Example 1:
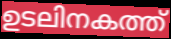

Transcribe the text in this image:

ഉടലിനകത്ത്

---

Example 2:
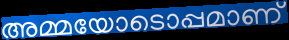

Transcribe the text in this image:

അമ്മയോടൊപ്പമാണ്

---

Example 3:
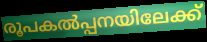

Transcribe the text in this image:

രൂപകൽപ്പനയിലേക്ക്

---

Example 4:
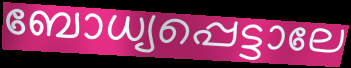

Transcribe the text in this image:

ബോധ്യപ്പെട്ടാലേ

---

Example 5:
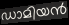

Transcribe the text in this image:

ഡാമിയൻ